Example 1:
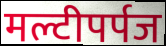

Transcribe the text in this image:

मल्टीपर्पज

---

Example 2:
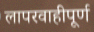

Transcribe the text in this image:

लापरवाहीपूर्ण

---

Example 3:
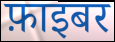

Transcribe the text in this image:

फ़ाइबर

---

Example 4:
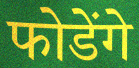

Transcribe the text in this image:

फोडेंगे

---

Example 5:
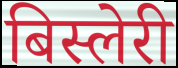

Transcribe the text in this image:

बिस्लेरी